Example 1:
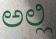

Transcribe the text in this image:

ಅಲ್ಲಿ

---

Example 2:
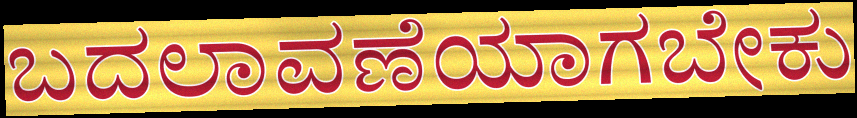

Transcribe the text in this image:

ಬದಲಾವಣೆಯಾಗಬೇಕು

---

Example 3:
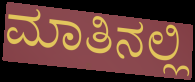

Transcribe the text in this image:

ಮಾತಿನಲ್ಲಿ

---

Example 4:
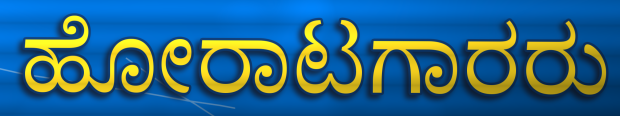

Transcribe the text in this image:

ಹೋರಾಟಗಾರರು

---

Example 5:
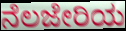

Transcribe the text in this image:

ನೆಲಜೇರಿಯ